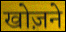
खोज़ने